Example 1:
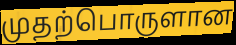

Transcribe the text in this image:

முதற்பொருளான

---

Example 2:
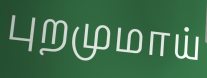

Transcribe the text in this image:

புறமுமாய்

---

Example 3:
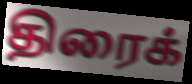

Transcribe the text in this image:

திரைக்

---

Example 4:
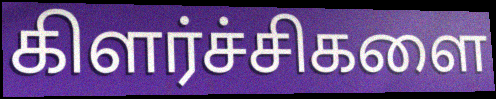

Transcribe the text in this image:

கிளர்ச்சிகளை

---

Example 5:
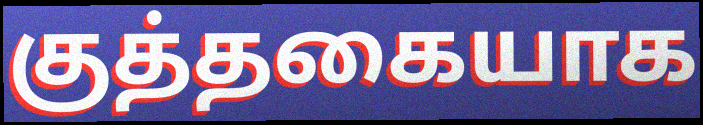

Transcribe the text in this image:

குத்தகையாக